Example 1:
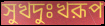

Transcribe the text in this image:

সুখদুঃখরূপ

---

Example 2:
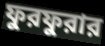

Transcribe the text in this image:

ফুরফুরার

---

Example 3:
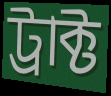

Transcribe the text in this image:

ট্রাক্ট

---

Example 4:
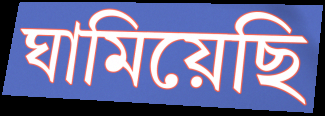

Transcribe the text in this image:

ঘামিয়েছি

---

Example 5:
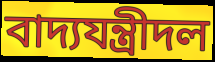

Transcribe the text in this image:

বাদ্যযন্ত্রীদল